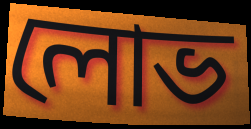
লোভ